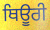
ਥਿਊਰੀ